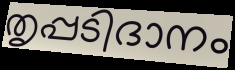
തൃപ്പടിദാനം